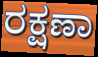
ರಕ್ಷಣಾ